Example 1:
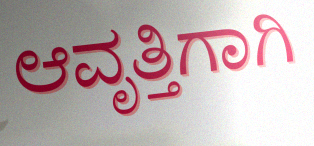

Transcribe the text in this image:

ಆವೃತ್ತಿಗಾಗಿ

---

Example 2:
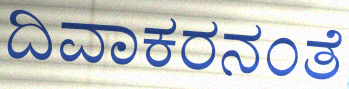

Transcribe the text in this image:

ದಿವಾಕರನಂತೆ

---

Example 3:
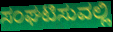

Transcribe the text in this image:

ಸಂಘಟಿಸುವಲ್ಲಿ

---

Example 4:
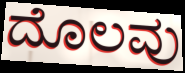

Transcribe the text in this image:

ದೊಲವು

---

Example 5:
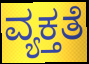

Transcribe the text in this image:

ವ್ಯಕ್ತತೆ